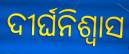
ଦୀର୍ଘନିଶ୍ୱାସ